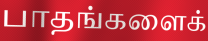
பாதங்களைக்